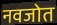
नवजोत